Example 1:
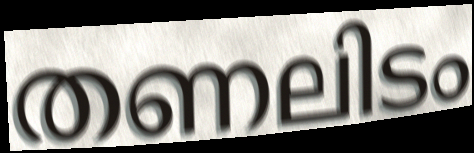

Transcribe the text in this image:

തണലിടം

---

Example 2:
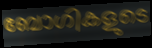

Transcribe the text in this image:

ബോഗികളുടെ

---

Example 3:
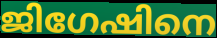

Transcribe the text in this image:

ജിഗേഷിനെ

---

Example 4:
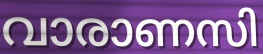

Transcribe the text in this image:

വാരാണസി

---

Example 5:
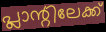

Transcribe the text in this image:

പ്ലാന്റിലേക്ക്